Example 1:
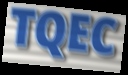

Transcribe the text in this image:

TQEC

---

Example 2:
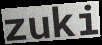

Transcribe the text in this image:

zuki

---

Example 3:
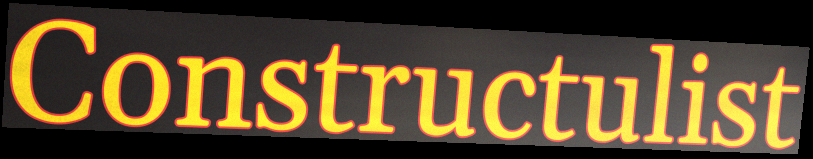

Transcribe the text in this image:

Constructulist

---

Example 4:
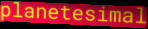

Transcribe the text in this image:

planetesimal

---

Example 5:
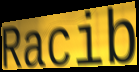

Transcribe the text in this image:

Racib